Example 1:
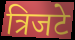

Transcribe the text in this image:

त्रिजटे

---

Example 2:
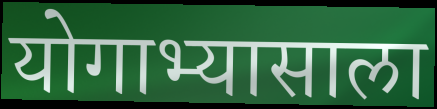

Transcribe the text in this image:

योगाभ्यासाला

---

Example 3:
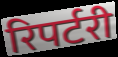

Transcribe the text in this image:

रिपर्टरी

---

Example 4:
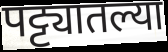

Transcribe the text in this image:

पट्ट्यातल्या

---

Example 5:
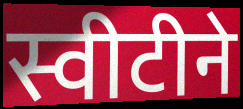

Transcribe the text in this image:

स्वीटीने